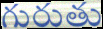
గురుతు